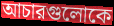
আচারগুলোকে